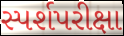
સ્પર્શપરીક્ષા